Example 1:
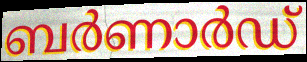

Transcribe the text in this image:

ബർണാർഡ്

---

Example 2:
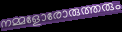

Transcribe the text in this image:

നമ്മളോരോരുത്തരും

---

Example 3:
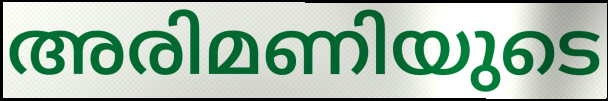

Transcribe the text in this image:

അരിമണിയുടെ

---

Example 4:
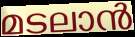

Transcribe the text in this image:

മടലാൻ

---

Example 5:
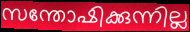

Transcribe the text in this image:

സന്തോഷിക്കുന്നില്ല